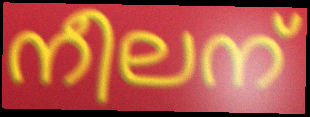
നീലന്